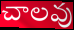
చాలవు